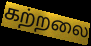
கற்றலை